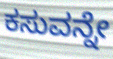
ಕಸುವನ್ನೇ